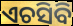
ଏଚସିବି